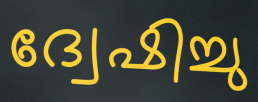
ദ്വേഷിച്ചു